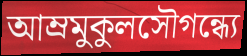
আম্রমুকুলসৌগন্ধ্যে